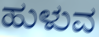
ಹುಳುವ